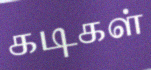
கடிகள்